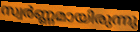
സ്വർണ്ണമായിരുന്നു